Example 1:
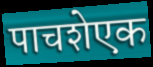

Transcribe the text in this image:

पाचशेएक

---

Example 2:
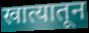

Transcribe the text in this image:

खात्यातून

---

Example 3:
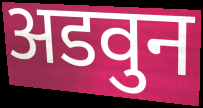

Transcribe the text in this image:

अडवुन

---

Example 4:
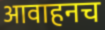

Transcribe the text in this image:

आवाहनच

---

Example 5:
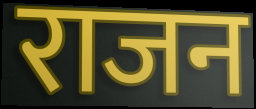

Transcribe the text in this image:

राजन